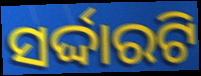
ସର୍ଦ୍ଦାରଟି